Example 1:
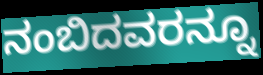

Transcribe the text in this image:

ನಂಬಿದವರನ್ನೂ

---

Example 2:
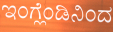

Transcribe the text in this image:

ಇಂಗ್ಲೆಂಡಿನಿಂದ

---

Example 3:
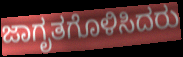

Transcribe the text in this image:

ಜಾಗೃತಗೊಳಿಸಿದರು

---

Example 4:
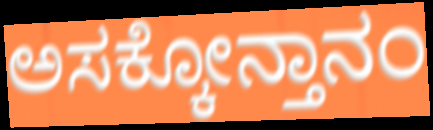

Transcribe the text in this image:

ಅಸಕ್ಕೋನ್ತಾನಂ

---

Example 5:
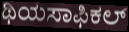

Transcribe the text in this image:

ಥಿಯಸಾಫಿಕಲ್